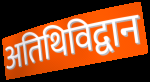
अतिथिविद्वान